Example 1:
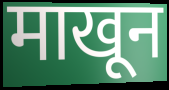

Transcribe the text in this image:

माखून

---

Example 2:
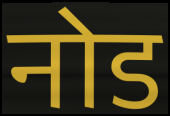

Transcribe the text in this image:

नोड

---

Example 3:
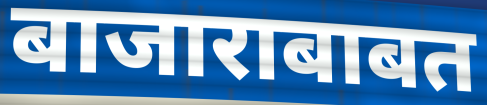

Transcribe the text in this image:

बाजाराबाबत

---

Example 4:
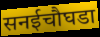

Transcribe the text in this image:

सनईचौघडा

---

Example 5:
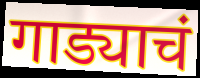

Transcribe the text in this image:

गाड्याचं